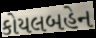
કોયલબહેન